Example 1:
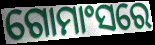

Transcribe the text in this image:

ଗୋମାଂସରେ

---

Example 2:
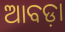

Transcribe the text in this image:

ଆବଡ଼ା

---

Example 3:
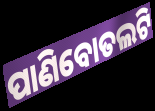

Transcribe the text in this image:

ପାଣିବୋତଲଟି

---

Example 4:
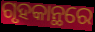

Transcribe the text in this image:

ଗୃହକାନ୍ଥରେ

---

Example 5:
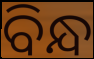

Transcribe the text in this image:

ବିନ୍ଧ